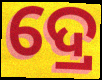
ଦ୍ରେ